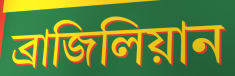
ব্রাজিলিয়ান